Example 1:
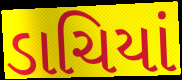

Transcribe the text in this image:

ડાચિયાં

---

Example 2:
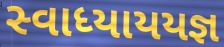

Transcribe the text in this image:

સ્વાધ્યાયયજ્ઞ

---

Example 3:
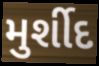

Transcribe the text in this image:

મુર્શીદ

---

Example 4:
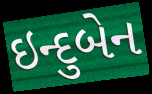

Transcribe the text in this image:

ઇન્દુબેન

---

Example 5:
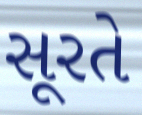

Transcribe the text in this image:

સૂરતે